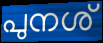
പുനശ്